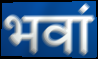
भवां